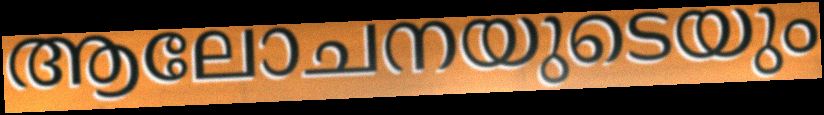
ആലോചനയുടെയും